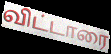
விட்டாரை